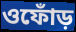
ওফোঁড়